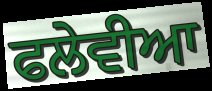
ਫਲੇਵੀਆ